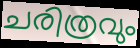
ചരിത്രവും